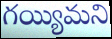
గయ్యిమని